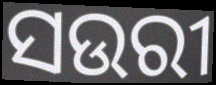
ସଉରୀ